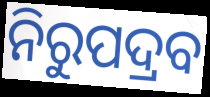
ନିରୁପଦ୍ରବ